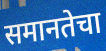
समानतेचा